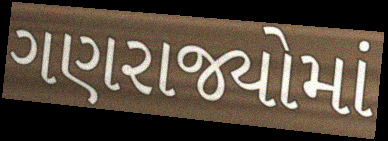
ગણરાજ્યોમાં